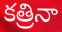
కత్రినా